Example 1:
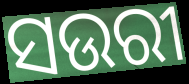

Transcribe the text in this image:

ସଉରୀ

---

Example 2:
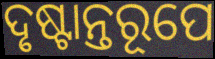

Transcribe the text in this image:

ଦୃଷ୍ଟାନ୍ତରୂପେ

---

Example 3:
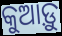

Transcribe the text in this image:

କୁଆଡ଼ୁ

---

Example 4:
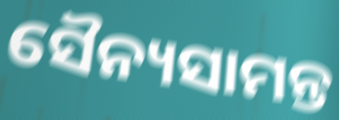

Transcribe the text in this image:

ସୈନ୍ୟସାମନ୍ତ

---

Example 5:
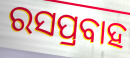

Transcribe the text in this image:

ରସପ୍ରବାହ